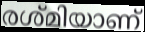
രശ്മിയാണ്